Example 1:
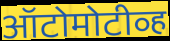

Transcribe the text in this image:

ऑटोमोटीव्ह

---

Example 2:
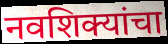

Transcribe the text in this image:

नवशिक्यांचा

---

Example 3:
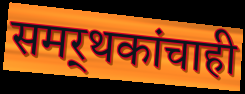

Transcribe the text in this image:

समर्थकांचाही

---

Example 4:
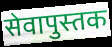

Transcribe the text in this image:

सेवापुस्तक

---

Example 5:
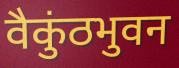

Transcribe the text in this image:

वैकुंठभुवन